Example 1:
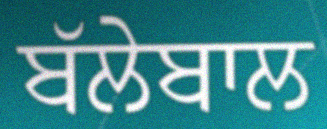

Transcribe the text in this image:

ਬੱਲੇਬਾਲ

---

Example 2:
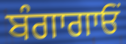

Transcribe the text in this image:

ਬੰਗਾਗਾਓਂ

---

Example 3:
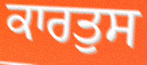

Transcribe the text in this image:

ਕਾਰਤੁਸ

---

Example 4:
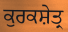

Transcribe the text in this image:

ਕੁਰਕਸ਼ੇਤ੍ਰ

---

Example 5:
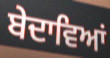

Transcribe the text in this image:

ਬੇਦਾਵਿਆਂ